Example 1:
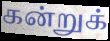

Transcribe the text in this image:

கன்றுக்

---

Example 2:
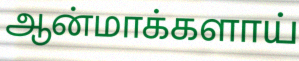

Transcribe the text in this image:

ஆன்மாக்களாய்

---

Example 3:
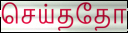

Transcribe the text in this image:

செய்ததோ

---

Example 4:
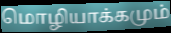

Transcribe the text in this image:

மொழியாக்கமும்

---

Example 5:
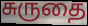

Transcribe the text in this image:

சுருதை